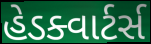
હેડક્વાર્ટર્સ